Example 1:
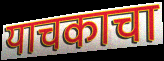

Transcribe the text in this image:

याचकाचा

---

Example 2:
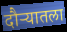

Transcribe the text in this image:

दौऱ्यातला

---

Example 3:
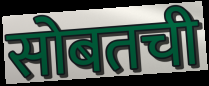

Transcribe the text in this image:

सोबतची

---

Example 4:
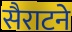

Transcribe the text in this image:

सैराटने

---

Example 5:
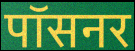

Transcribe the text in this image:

पॉसनर